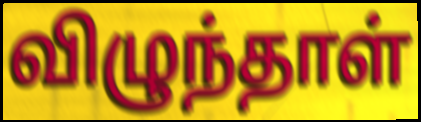
விழுந்தாள்